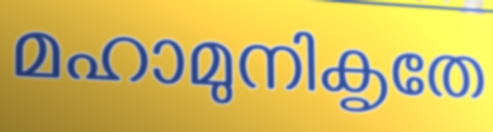
മഹാമുനികൃതേ